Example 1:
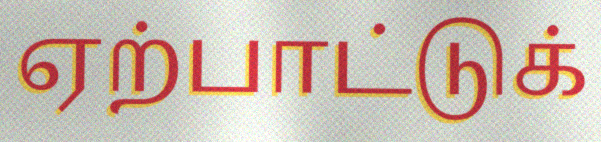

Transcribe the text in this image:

ஏற்பாட்டுக்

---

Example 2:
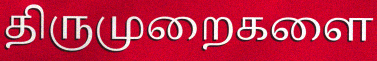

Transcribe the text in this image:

திருமுறைகளை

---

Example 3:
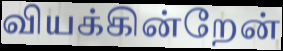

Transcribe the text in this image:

வியக்கின்றேன்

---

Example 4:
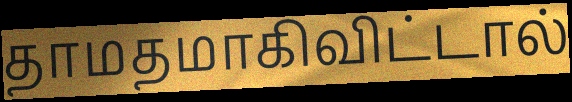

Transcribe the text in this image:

தாமதமாகிவிட்டால்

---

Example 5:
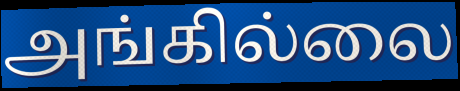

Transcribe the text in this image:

அங்கில்லை